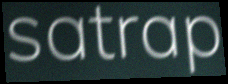
satrap